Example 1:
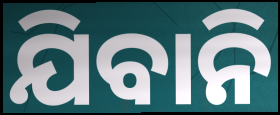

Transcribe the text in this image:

ଯିବାନି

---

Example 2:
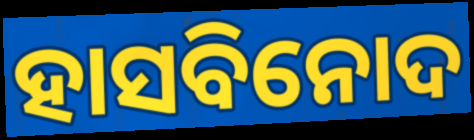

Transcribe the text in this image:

ହାସବିନୋଦ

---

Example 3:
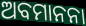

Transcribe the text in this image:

ଅବମାନନା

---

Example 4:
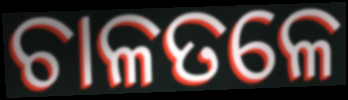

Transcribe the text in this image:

ଚାଳତଳେ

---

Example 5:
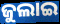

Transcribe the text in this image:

ଜୁଲାଇ